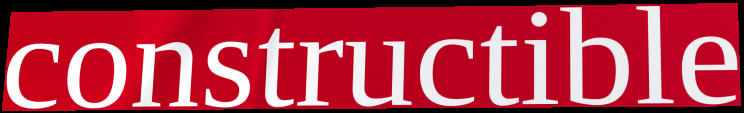
constructible